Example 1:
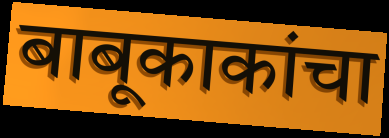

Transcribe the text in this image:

बाबूकाकांचा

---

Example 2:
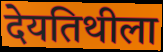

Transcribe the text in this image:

देयतिथीला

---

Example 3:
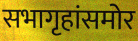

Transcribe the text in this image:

सभागृहांसमोर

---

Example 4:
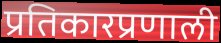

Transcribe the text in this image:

प्रतिकारप्रणाली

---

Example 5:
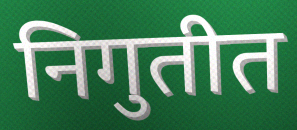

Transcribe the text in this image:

निगुतीत